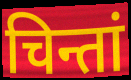
चिन्तां